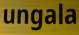
ungala